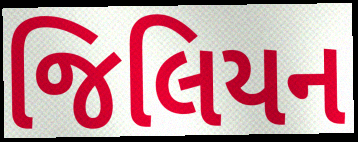
જિલિયન